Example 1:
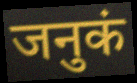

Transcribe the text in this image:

जनुकं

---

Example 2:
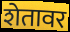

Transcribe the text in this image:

शेतावर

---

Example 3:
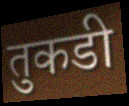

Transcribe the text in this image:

तुकडी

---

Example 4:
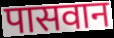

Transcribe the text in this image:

पासवान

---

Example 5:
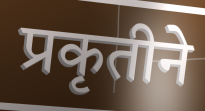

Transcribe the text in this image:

प्रकृतीने